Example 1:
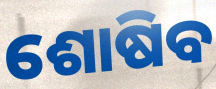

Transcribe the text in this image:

ଶୋଷିବ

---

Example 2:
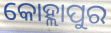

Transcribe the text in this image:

କୋହ୍ଲାପୁର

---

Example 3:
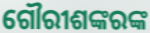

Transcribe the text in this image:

ଗୌରୀଶଙ୍କରଙ୍କ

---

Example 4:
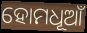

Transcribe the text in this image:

ହୋମଧୂଆଁ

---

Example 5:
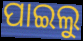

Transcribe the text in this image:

ପାଇଲୁ